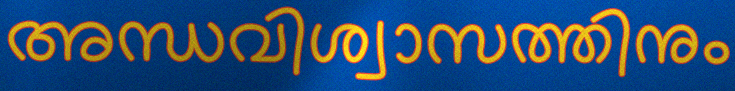
അന്ധവിശ്വാസത്തിനും